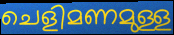
ചെളിമണമുള്ള